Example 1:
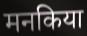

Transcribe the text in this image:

मनकिया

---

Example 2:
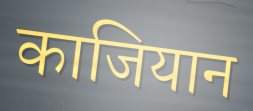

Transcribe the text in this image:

काजियान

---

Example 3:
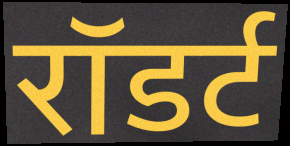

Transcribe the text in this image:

रॉडर्ट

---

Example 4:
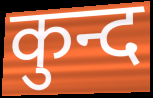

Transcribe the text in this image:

कुन्द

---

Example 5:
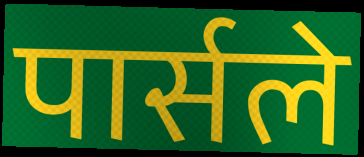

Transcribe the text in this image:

पार्सले